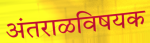
अंतराळविषयक